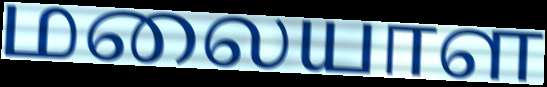
மலையாள